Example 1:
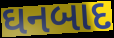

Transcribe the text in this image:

ઘનબાદ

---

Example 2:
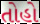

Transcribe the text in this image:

તોહો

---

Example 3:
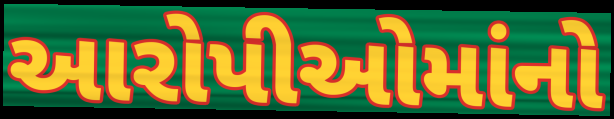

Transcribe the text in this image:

આરોપીઓમાંનો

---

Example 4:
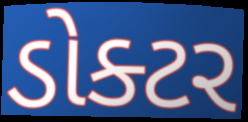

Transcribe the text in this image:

ડોક્ટર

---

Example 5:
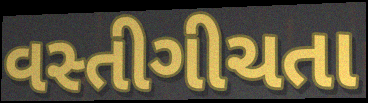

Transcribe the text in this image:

વસ્તીગીચતા